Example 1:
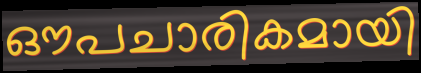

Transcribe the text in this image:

ഔപചാരികമായി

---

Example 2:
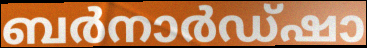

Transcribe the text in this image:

ബർനാർഡ്ഷാ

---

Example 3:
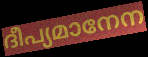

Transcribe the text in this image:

ദീപ്യമാനേന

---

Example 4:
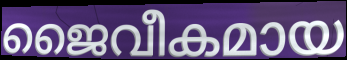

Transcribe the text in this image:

ജൈവീകമായ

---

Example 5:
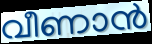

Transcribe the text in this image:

വീണാൻ